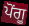
ਪੋਂਗੂ